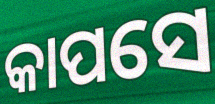
କାପସେ